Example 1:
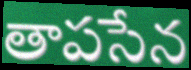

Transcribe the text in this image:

తాపసేన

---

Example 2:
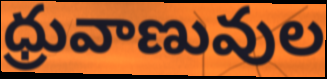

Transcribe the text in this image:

ధ్రువాణువుల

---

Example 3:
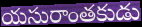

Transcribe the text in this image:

యసురాంతకుడు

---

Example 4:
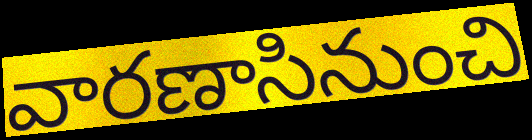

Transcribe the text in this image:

వారణాసినుంచి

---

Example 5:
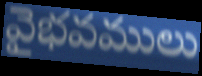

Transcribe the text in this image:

వైభవములు